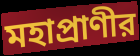
মহাপ্রাণীর